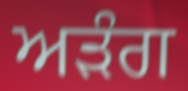
ਅੜੰਗ